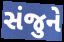
સંજુને